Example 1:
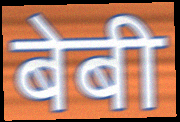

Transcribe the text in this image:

बेबी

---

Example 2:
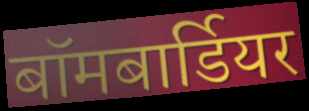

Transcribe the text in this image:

बॉमबार्डियर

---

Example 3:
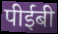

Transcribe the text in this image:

पीईबी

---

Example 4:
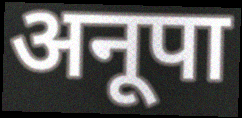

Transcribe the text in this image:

अनूपा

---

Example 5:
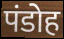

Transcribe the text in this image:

पंडोह